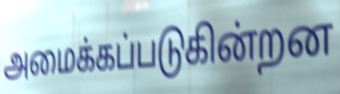
அமைக்கப்படுகின்றன